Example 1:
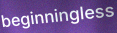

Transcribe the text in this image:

beginningless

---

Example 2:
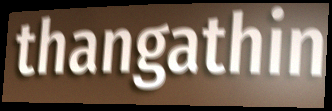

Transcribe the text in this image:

thangathin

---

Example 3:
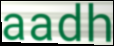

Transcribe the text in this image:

aadh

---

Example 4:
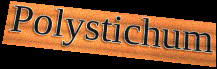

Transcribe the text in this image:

Polystichum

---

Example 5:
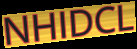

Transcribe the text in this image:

NHIDCL